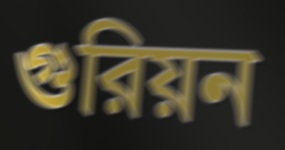
গুরিয়ন